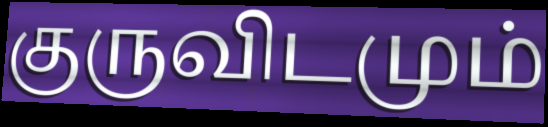
குருவிடமும்